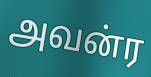
அவன்ர